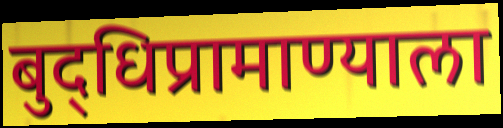
बुद्धिप्रामाण्याला